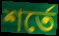
শর্তে